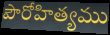
పౌరోహిత్యము